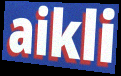
aikli